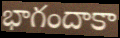
భాగందాకా